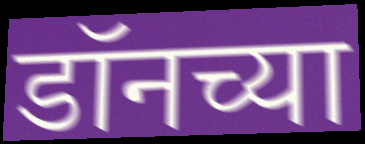
डॉनच्या